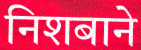
निशबाने